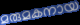
മരുമകനായ